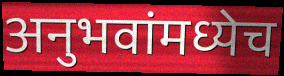
अनुभवांमध्येच